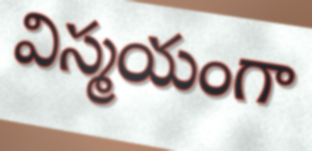
విస్మయంగా